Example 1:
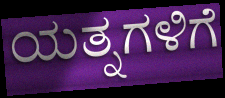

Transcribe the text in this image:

ಯತ್ನಗಳಿಗೆ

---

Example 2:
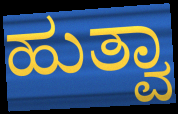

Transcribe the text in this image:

ಹುತ್ವಾ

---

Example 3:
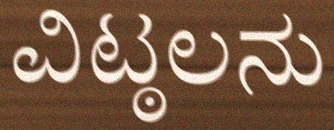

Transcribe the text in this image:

ವಿಟ್ಠಲನು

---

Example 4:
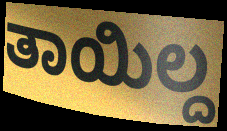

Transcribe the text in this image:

ತಾಯಿಲ್ದ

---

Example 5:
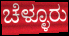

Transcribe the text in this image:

ಚೆಳ್ಳೂರು